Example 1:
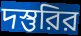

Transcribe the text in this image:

দস্তুরির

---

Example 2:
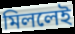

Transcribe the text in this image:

মিললেই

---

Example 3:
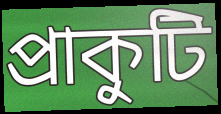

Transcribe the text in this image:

প্রাকুটি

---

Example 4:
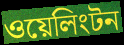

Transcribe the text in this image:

ওয়েলিংটন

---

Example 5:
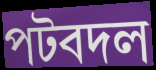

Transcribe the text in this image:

পটবদল